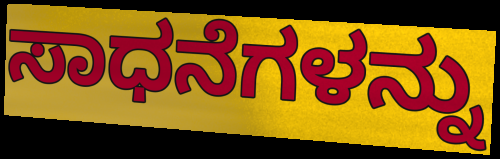
ಸಾಧನೆಗಳನ್ನು